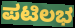
ಪಟಿಲಭ